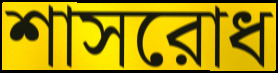
শাসরোধ